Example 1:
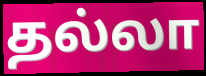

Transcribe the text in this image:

தல்லா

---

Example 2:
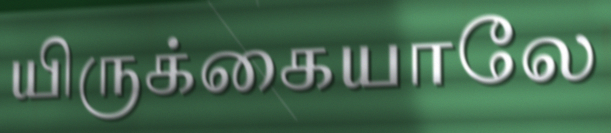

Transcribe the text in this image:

யிருக்கையாலே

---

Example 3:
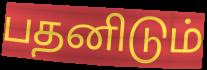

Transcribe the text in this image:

பதனிடும்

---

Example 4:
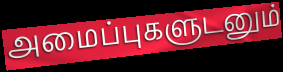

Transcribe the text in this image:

அமைப்புகளுடனும்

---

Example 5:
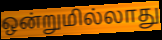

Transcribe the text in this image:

ஒன்றுமில்லாது